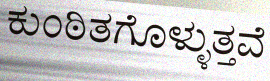
ಕುಂಠಿತಗೊಳ್ಳುತ್ತವೆ